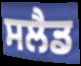
ਸਲੈਡ